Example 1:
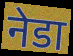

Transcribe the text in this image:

नेडा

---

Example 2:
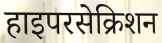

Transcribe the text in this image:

हाइपरसेक्रिशन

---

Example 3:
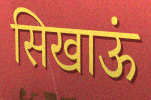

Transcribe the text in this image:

सिखाऊं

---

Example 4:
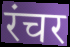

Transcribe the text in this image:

रंचर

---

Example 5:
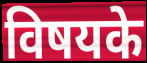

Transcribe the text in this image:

विषयके